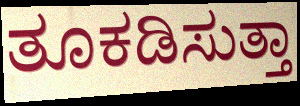
ತೂಕಡಿಸುತ್ತಾ